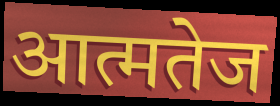
आत्मतेज